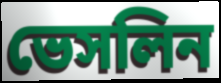
ভেসলিন